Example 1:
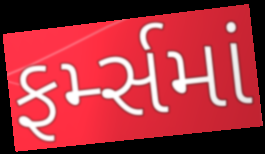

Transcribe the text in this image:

ફર્મ્સમાં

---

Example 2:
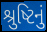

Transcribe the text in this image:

શ્રુષ્ટિનું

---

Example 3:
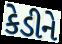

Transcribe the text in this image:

કેડીને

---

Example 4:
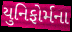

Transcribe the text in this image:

યુનિફોર્મના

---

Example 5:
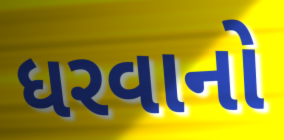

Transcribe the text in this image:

ધરવાનો